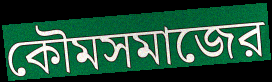
কৌমসমাজের